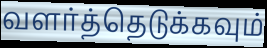
வளர்த்தெடுக்கவும்